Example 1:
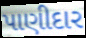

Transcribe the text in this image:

પાણીદાર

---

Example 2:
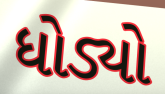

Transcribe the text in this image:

ધોડ્યો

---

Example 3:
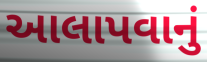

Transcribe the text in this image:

આલાપવાનું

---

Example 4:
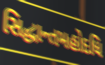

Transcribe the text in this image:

સિદ્ધાન્તમહોદધિ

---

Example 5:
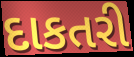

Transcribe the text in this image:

દાકતરી